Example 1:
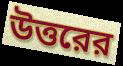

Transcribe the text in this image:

উত্তরের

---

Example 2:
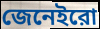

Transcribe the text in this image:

জেনেইরো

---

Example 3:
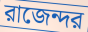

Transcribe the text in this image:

রাজেন্দর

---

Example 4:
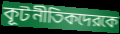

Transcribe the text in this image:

কূটনীতিকদেরকে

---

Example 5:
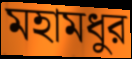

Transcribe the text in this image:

মহামধুর